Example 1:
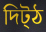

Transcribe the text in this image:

দিট্ঠ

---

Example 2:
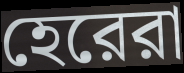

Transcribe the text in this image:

হেরেরা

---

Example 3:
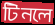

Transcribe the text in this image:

টিনলে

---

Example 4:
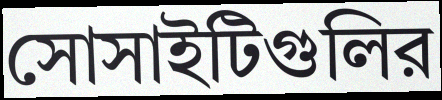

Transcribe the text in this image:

সোসাইটিগুলির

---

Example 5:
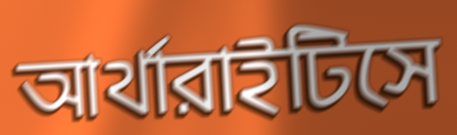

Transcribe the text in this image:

আর্থারাইটিসে